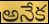
అనేక